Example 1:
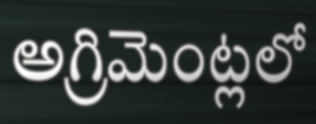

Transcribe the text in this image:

అగ్రిమెంట్లలో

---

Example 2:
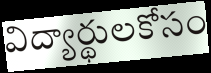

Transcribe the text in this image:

విద్యార్థులకోసం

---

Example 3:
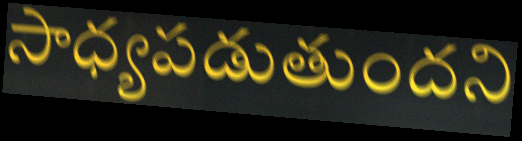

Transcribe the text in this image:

సాధ్యపడుతుందని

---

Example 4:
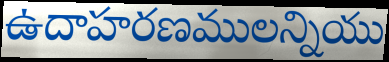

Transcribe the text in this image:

ఉదాహరణములన్నియు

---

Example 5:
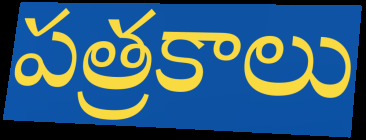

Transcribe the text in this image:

పత్రకాలు